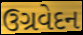
ઉગ્રવેદન